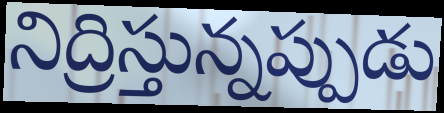
నిద్రిస్తున్నప్పుడు